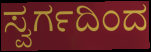
ಸ್ವರ್ಗದಿಂದ